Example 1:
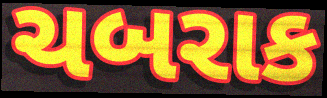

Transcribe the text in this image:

ચબરાક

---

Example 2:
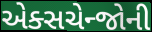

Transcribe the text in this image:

એક્સચેન્જોની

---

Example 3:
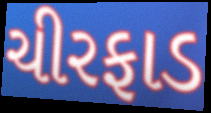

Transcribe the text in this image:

ચીરફાડ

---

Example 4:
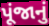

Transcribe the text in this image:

પૂંજાનું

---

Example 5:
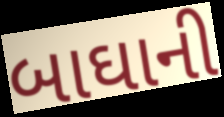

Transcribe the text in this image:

બાઘાની